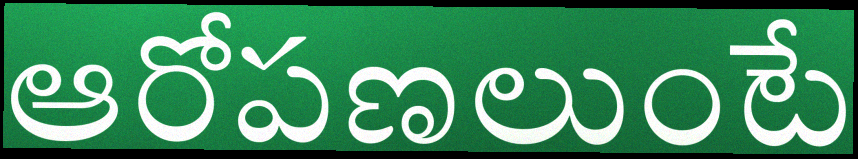
ఆరోపణలుంటే